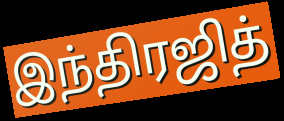
இந்திரஜித்